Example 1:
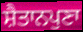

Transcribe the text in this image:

ਸ਼ੈਤਾਨਪੁਣਾ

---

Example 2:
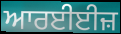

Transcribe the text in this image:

ਆਰਈਈਜ਼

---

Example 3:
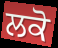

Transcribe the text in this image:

ਲਕੋ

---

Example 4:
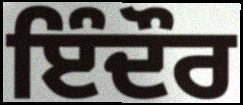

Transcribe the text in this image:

ਇੰਦੌਰ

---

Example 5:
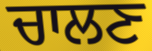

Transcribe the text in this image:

ਚਾਲਣ